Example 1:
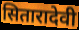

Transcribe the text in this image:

सितारादेवी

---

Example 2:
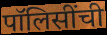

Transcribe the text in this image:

पॉलिसींची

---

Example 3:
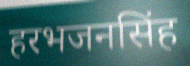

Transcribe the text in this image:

हरभजनसिंह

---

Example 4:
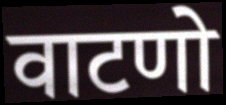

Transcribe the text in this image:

वाटणो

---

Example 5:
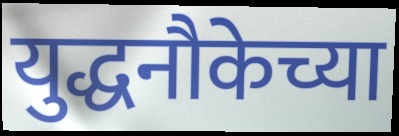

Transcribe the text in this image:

युद्धनौकेच्या